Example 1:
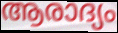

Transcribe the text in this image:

ആരാദ്യം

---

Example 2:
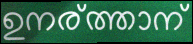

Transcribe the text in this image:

ഉനര്ത്താന്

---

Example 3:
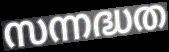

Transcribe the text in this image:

സന്നദ്ധത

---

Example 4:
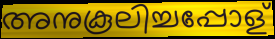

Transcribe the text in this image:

അനുകൂലിച്ചപ്പോള്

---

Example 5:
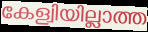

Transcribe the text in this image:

കേള്വിയില്ലാത്ത